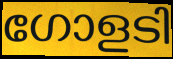
ഗോളടി